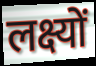
लक्ष्‍यों